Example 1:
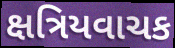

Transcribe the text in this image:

ક્ષત્રિયવાચક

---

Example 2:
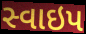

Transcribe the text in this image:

સ્વાઇપ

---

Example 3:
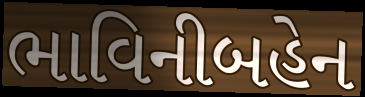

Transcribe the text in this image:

ભાવિનીબહેન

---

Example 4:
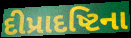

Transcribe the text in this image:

દીપ્રાદષ્ટિના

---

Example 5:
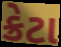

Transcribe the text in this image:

ક્રેટા